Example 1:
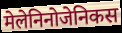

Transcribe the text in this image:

मेलेनिनोजेनिकस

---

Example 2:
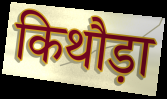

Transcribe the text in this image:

किथौड़ा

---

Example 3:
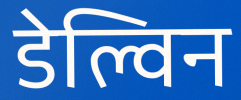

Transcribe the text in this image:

डेल्विन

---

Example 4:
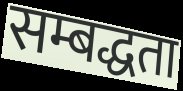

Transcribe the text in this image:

सम्‍बद्धता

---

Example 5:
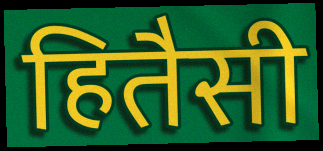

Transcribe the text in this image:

हितैसी